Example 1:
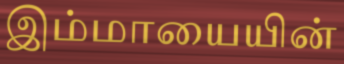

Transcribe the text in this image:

இம்மாயையின்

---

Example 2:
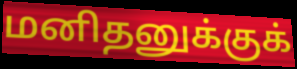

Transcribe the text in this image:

மனிதனுக்குக்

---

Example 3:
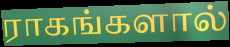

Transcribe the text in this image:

ராகங்களால்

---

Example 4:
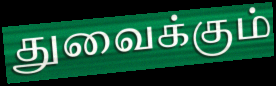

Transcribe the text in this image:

துவைக்கும்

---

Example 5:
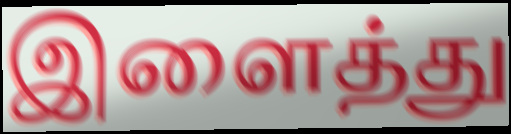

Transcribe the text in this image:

இளைத்து